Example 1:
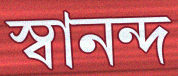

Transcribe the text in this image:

স্বানন্দ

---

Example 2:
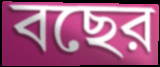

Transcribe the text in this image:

বছের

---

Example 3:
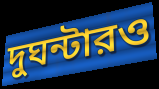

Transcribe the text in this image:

দুঘন্টারও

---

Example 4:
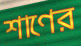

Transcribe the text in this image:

শাণের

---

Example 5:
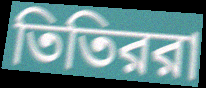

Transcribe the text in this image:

তিতিররা